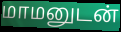
மாமனுடன்